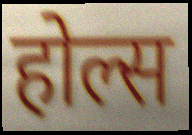
होल्स